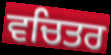
ਵਚਿਤਰ